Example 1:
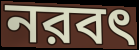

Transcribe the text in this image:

নরবৎ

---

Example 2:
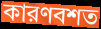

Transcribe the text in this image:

কারণবশত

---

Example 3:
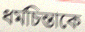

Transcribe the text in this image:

ধর্মচিন্তাকে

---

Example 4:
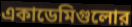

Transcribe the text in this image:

একাডেমিগুলোর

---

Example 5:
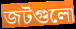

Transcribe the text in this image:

জটগুলো